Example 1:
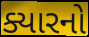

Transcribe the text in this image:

ક્યારનો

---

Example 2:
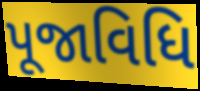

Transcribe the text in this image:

પૂજાવિધિ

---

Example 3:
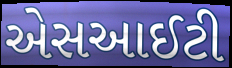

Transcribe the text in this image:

એસઆઈટી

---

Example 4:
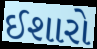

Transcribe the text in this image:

ઈશારો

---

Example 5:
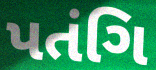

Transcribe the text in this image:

પતંગિ